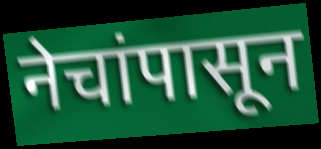
नेचांपासून